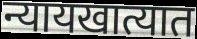
न्यायखात्यात